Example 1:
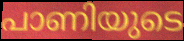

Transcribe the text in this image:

പാണിയുടെ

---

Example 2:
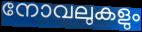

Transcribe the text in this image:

നോവലുകളും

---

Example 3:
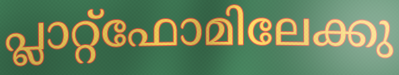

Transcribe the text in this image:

പ്ലാറ്റ്ഫോമിലേക്കു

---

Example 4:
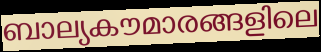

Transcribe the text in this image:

ബാല്യകൗമാരങ്ങളിലെ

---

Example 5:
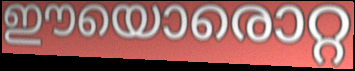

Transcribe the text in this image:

ഈയൊരൊറ്റ